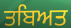
ਤਬਿਅਤ